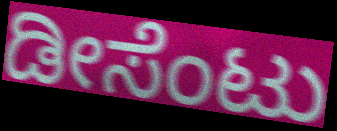
ಡೀಸೆಂಟು